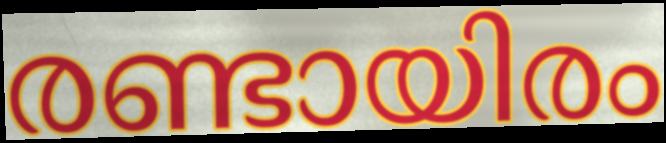
രണ്ടായിരം